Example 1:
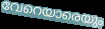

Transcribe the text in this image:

വേറെയാരെയും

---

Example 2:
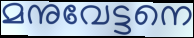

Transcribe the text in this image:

മനുവേട്ടനെ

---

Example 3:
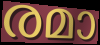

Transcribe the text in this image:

രമാ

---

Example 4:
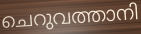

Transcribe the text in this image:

ചെറുവത്താനി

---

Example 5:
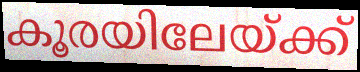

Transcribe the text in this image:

കൂരയിലേയ്ക്ക്